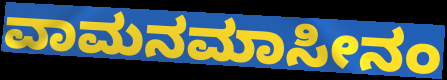
ವಾಮನಮಾಸೀನಂ